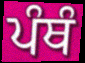
ਪੰਥੰ